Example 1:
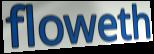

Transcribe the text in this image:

floweth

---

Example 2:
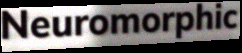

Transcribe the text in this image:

Neuromorphic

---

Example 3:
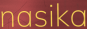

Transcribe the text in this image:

nasika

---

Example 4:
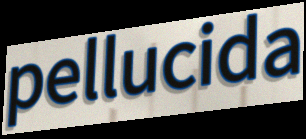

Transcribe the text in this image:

pellucida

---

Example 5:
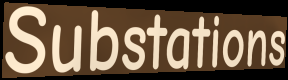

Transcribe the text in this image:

Substations